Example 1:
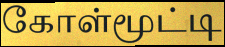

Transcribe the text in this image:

கோள்மூட்டி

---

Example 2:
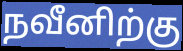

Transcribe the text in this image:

நவீனிற்கு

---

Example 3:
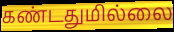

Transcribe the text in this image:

கண்டதுமில்லை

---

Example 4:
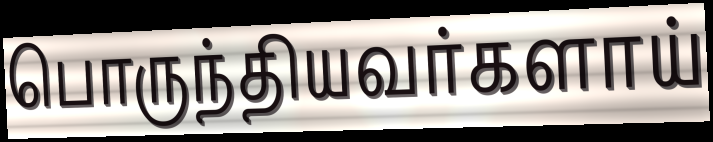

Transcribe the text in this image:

பொருந்தியவர்களாய்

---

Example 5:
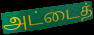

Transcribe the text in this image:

அட்டைத்